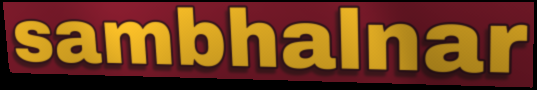
sambhalnar